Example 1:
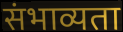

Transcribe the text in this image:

संभाव्यता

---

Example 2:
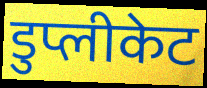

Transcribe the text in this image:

डुप्‍लीकेट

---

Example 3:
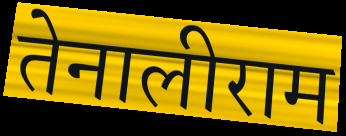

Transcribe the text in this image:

तेनालीराम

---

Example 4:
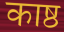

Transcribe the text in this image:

काष्ठ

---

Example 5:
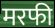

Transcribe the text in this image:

मरफी